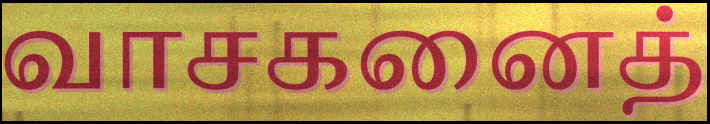
வாசகனைத்